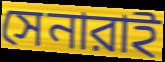
সেনারাই